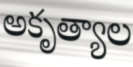
అకృత్యాల